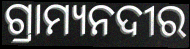
ଗ୍ରାମ୍ୟନଦୀର